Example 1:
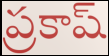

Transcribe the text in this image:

ప్రకాష్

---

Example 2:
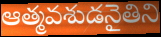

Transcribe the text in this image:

ఆత్మవశుడనైతిని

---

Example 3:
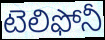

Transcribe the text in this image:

టెలిఫోనీ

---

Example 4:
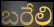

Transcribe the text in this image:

బరేలి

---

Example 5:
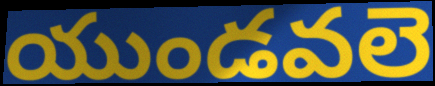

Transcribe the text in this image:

యుండవలె